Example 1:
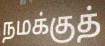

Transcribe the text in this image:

நமக்குத்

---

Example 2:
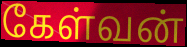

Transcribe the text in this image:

கேள்வன்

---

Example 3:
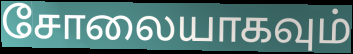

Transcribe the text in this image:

சோலையாகவும்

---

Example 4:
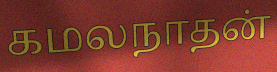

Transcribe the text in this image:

கமலநாதன்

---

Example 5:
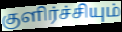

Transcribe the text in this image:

குளிர்ச்சியும்